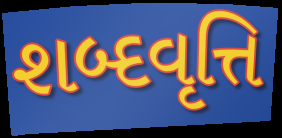
શબ્દવૃત્તિ